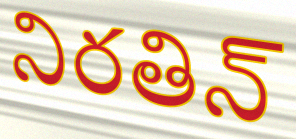
నిరతిన్